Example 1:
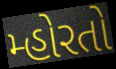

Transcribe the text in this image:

મ્હોરતો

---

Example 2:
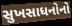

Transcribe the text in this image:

સુખસાધનોનો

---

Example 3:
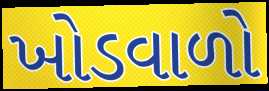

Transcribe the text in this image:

ખોડવાળો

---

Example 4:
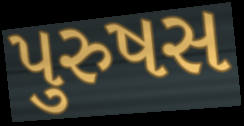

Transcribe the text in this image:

પુરુષસ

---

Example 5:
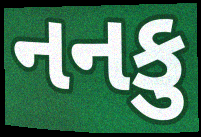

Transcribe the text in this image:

નનકુ